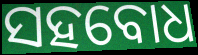
ସହବୋଧ